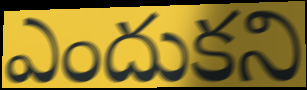
ఎందుకని